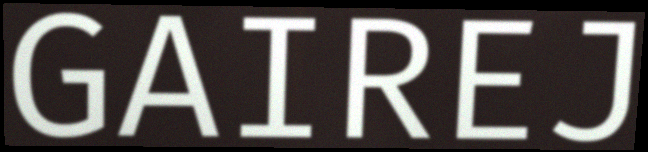
GAIREJ